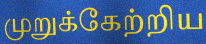
முறுக்கேற்றிய